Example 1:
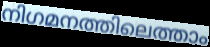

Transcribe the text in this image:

നിഗമനത്തിലെത്താം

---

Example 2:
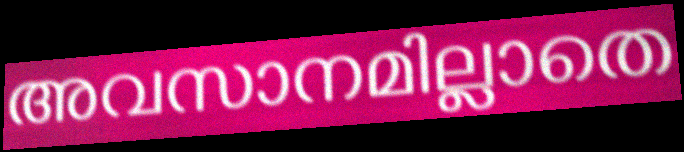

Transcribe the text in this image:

അവസാനമില്ലാതെ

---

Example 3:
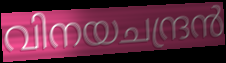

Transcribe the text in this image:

വിനയചന്ദ്രൻ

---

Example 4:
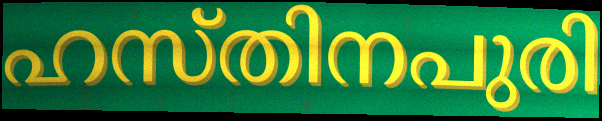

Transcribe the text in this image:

ഹസ്തിനപുരി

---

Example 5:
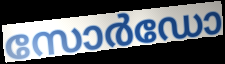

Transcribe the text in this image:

സോർഡോ